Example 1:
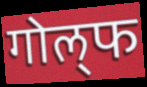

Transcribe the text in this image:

गोल्फ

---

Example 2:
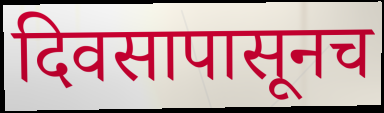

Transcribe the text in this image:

दिवसापासूनच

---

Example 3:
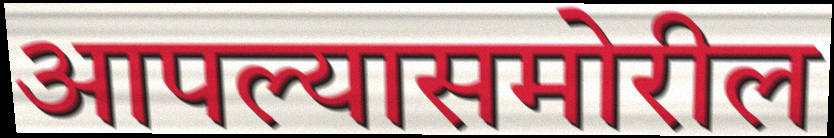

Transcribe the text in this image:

आपल्यासमोरील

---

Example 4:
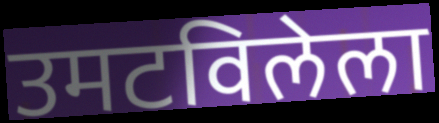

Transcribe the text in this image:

उमटविलेला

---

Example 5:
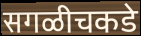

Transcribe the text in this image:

सगळीचकडे